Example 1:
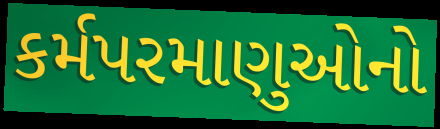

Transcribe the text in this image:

કર્મપરમાણુઓનો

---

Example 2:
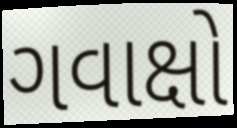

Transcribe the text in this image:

ગવાક્ષો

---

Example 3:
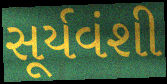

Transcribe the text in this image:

સૂર્યવંશી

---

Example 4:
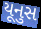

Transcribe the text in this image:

યૂનુસ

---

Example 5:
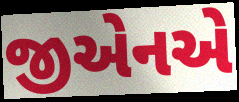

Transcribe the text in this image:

જીએનએ